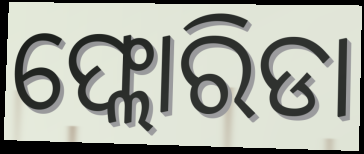
ଫ୍ଲୋରିଡା